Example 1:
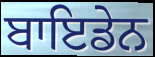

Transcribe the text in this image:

ਬਾਇਡੇਨ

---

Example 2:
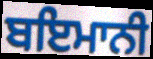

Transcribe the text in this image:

ਬਇਮਾਨੀ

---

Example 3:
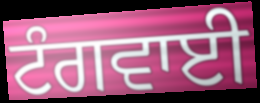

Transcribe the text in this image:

ਟੰਗਵਾਈ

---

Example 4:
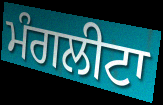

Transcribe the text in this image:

ਮੰਗਲੀਟਾ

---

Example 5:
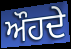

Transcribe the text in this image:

ਔਹਦੇ